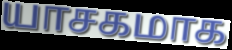
யாசகமாக